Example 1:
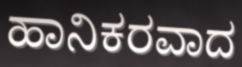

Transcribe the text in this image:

ಹಾನಿಕರವಾದ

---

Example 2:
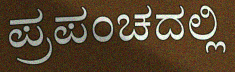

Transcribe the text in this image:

ಪ್ರಪಂಚದಲ್ಲಿ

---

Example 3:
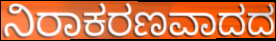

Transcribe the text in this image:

ನಿರಾಕರಣವಾದದ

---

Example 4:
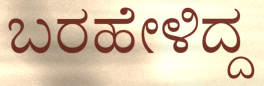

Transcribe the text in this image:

ಬರಹೇಳಿದ್ದ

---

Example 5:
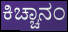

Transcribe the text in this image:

ಕಿಚ್ಚಾನಂ